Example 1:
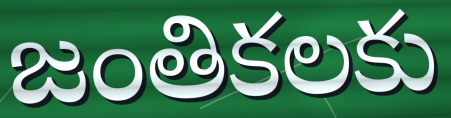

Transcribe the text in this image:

జంతికలకు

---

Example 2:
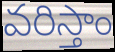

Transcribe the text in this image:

వరిస్తాం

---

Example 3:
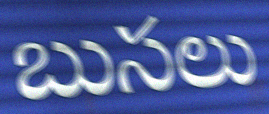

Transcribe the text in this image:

బుసలు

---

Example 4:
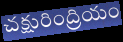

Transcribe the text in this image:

చక్షురింద్రియం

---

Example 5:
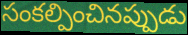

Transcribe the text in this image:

సంకల్పించినప్పుడు